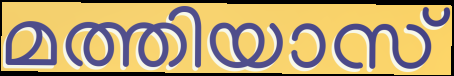
മത്തിയാസ്